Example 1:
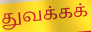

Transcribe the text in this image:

துவக்கக்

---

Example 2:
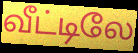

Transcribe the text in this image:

வீட்டிலே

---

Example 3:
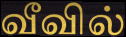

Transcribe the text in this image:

வீவில்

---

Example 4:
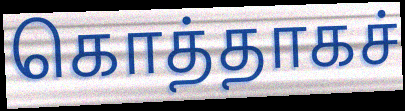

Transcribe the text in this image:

கொத்தாகச்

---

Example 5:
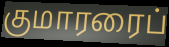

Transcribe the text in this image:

குமாரரைப்